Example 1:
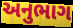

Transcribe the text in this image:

અનુભાગ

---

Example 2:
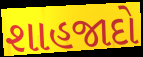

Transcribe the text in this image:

શાહજાદો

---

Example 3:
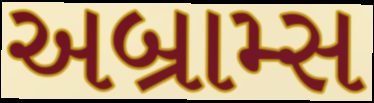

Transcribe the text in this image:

અબ્રામ્સ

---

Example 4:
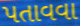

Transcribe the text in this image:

પતાવવા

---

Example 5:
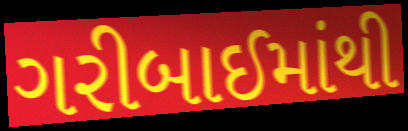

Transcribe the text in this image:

ગરીબાઈમાંથી